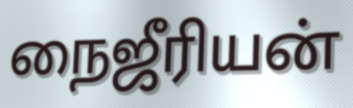
நைஜீரியன்